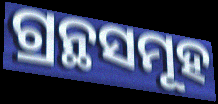
ଗ୍ରନ୍ଥସମୂହ